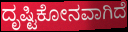
ದೃಷ್ಟಿಕೋನವಾಗಿದೆ